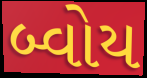
બ્વોય